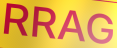
RRAG